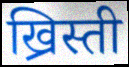
ख्रिस्ती